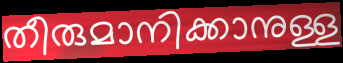
തീരുമാനിക്കാനുള്ള